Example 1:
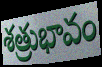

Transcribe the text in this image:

శత్రుభావం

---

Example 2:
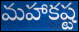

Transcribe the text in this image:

మహాకష్ట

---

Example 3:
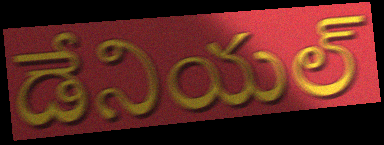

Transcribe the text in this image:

డేనియల్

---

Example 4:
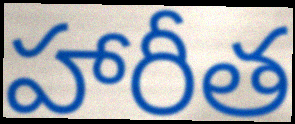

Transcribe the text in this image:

హారీత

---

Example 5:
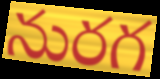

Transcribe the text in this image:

నురగ